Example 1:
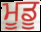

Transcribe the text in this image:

ਮੂਡੂ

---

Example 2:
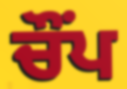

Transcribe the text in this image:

ਚੌਂਪ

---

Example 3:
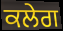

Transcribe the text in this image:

ਕਲੇਗ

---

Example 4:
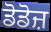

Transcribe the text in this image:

ਡੋਡੋਜ਼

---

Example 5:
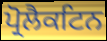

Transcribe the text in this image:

ਪ੍ਰੋਲੈਕਟਿਨ